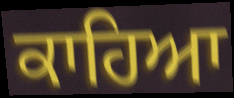
ਕਾਹਿਆ